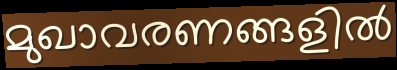
മുഖാവരണങ്ങളിൽ